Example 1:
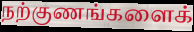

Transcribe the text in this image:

நற்குணங்களைக்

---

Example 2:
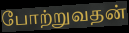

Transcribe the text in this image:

போற்றுவதன்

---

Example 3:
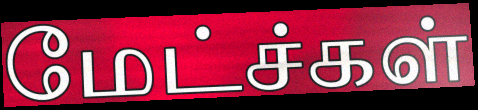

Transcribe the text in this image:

மேட்ச்கள்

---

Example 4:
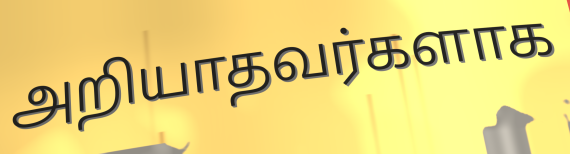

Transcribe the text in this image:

அறியாதவர்களாக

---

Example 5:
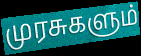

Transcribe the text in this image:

முரசுகளும்